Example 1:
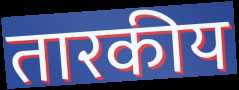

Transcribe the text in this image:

तारकीय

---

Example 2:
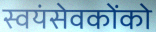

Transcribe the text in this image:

स्वयंसेवकोंको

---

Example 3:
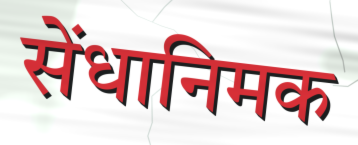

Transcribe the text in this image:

सेंधानिमक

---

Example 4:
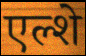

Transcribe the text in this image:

एल्शे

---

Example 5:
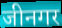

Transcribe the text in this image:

जीनगर